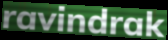
ravindrak